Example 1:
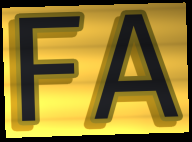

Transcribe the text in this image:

FA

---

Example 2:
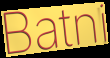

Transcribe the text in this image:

Batni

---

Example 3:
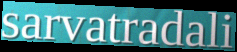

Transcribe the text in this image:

sarvatradali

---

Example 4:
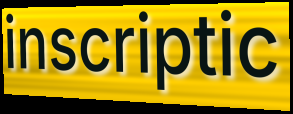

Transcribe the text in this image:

inscriptic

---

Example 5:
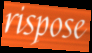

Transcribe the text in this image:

rispose